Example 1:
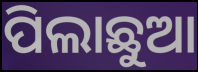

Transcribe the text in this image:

ପିଲାଛୁଆ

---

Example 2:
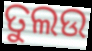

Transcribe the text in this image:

ତୁଲଉ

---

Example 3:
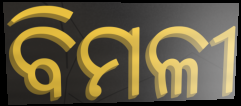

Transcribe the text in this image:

ବିମଳୀ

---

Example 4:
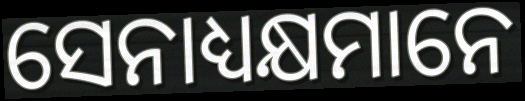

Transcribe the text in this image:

ସେନାଧ୍ୟକ୍ଷମାନେ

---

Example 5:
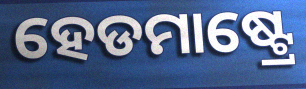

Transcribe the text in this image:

ହେଡମାଷ୍ଟ୍ରେ